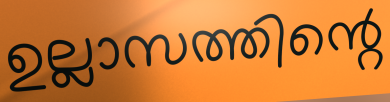
ഉല്ലാസത്തിന്റെ